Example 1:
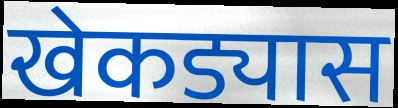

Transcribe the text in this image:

खेकड्यास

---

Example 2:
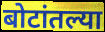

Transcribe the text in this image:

बोटांतल्या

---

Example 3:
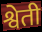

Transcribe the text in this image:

श्वेती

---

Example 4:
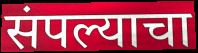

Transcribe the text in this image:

संपल्याचा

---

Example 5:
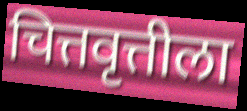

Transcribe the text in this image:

चित्तवृत्तीला